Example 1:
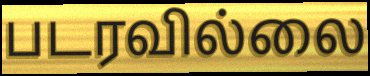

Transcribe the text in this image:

படரவில்லை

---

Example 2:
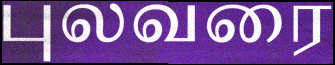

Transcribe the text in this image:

புலவரை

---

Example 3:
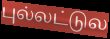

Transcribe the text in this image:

புல்லட்டுல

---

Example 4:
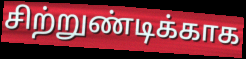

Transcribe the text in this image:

சிற்றுண்டிக்காக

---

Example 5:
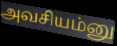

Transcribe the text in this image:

அவசியம்னு